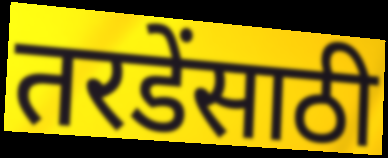
तरडेंसाठी